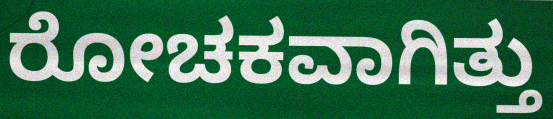
ರೋಚಕವಾಗಿತ್ತು